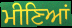
ਮੀਣਿਆਂ